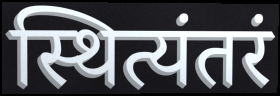
स्थित्यंतरं